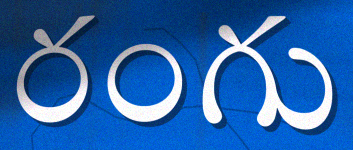
రంగు